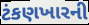
ટંકણખારની